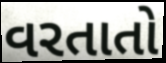
વરતાતો